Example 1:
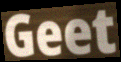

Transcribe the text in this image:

Geet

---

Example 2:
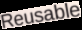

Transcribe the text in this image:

Reusable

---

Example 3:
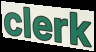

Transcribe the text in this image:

clerk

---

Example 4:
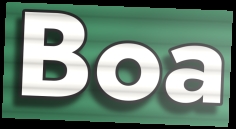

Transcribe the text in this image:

Boa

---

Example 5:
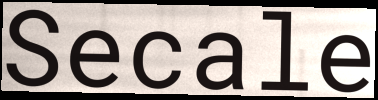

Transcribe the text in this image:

Secale